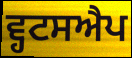
ਵ੍ਹਟਸਐਪ